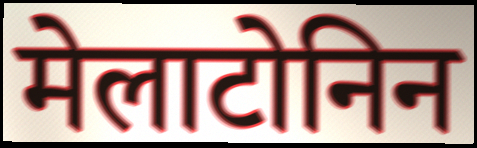
मेलाटोनिन